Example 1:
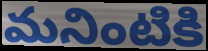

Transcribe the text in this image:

మనింటికి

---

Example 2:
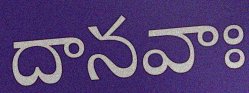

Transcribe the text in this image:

దానవాః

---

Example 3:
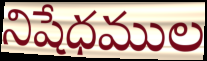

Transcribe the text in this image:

నిషేధముల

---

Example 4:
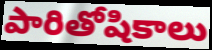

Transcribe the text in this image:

పారితోషికాలు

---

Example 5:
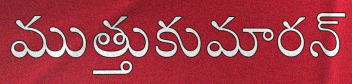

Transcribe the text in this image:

ముత్తుకుమారన్